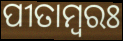
ପୀତାମ୍ୱରଃ